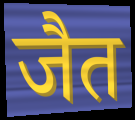
जैत